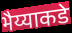
भैय्याकडे